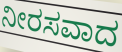
ನೀರಸವಾದ